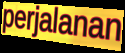
perjalanan